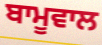
ਬਾਮੂਵਾਲ